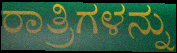
ರಾತ್ರಿಗಳನ್ನು